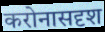
करोनासदृश